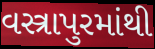
વસ્ત્રાપુરમાંથી